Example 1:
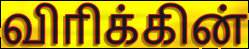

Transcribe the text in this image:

விரிக்கின்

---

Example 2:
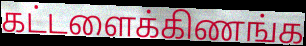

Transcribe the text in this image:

கட்டளைக்கிணங்க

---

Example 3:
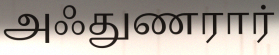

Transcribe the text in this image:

அஃதுணரார்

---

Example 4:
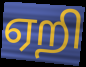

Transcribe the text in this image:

ஏறி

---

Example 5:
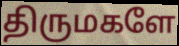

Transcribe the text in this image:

திருமகளே